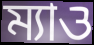
ম্যাও